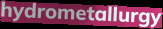
hydrometallurgy